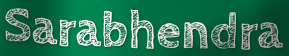
Sarabhendra